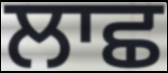
ਲਾਛ